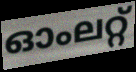
ഓംലറ്റ്